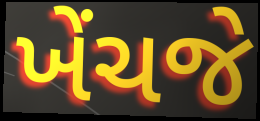
ખેંચજે